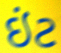
ઇંટ